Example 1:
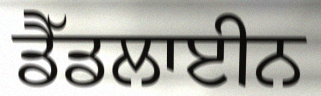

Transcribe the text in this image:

ਡੈੱਡਲਾਈਨ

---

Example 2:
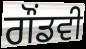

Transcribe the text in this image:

ਗੌਂਡਵੀ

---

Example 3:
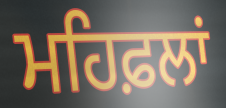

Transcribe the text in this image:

ਮਹਿਫ਼ਲਾਂ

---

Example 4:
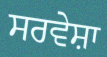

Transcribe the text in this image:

ਸਰਵੇਸ਼ਾ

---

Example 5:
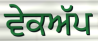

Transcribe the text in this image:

ਵੇਕਅੱਪ